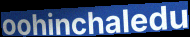
oohinchaledu